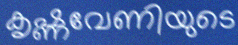
കൃഷ്ണവേണിയുടെ